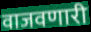
वाजवणारी